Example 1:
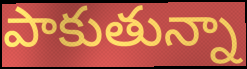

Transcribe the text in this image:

పాకుతున్నా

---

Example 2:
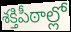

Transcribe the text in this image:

శక్తిపీఠాల్లో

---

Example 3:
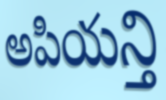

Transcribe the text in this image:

అపియన్తి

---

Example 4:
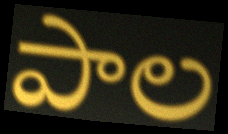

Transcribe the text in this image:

పాల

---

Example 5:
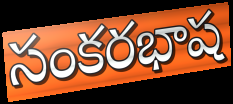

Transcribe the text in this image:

సంకరభాష